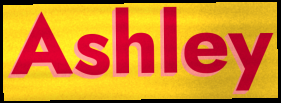
Ashley